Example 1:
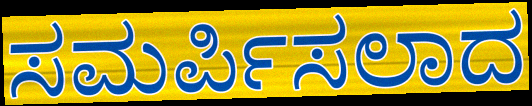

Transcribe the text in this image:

ಸಮರ್ಪಿಸಲಾದ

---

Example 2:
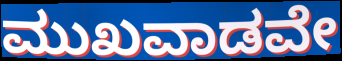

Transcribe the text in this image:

ಮುಖವಾಡವೇ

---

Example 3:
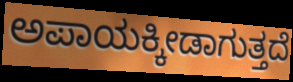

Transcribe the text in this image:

ಅಪಾಯಕ್ಕೀಡಾಗುತ್ತದೆ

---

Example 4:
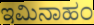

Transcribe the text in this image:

ಇಮಿನಾಹಂ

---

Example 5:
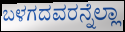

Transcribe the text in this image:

ಬಳಗದವರನ್ನೆಲ್ಲಾ